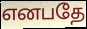
எனபதே